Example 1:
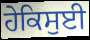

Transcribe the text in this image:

ਹੇਕਿਸੁਈ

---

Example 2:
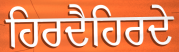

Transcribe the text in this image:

ਹਿਰਦੈਹਿਰਦੇ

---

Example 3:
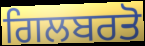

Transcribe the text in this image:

ਗਿਲਬਰਤੋ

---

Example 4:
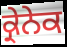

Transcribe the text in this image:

ਕ੍ਰੇਨੇਕ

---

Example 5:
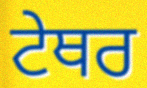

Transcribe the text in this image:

ਟੇਥਰ